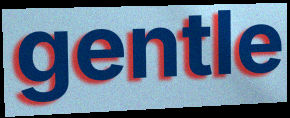
gentle